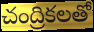
చంద్రికలతో